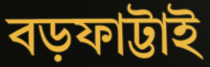
বড়ফাট্টাই